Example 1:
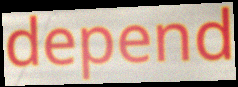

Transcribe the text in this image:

depend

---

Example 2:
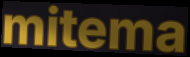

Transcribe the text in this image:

mitema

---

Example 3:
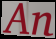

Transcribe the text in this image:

An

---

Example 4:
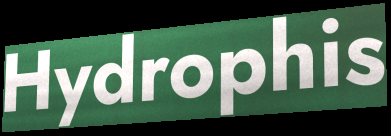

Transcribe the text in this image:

Hydrophis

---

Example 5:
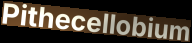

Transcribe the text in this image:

Pithecellobium